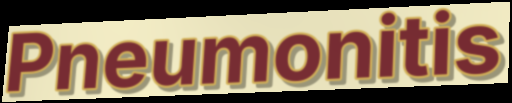
Pneumonitis